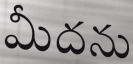
మీదను